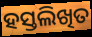
ହସ୍ତଲିଖିତ